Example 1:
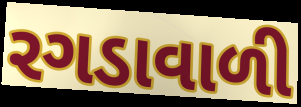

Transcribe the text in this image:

રગડાવાળી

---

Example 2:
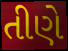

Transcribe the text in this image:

તીણે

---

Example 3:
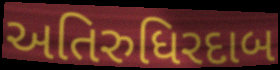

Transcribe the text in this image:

અતિરુધિરદાબ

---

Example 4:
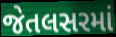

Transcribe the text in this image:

જેતલસરમાં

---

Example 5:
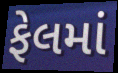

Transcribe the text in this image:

ફેલમાં